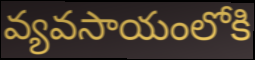
వ్యవసాయంలోకి